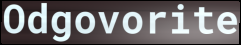
Odgovorite